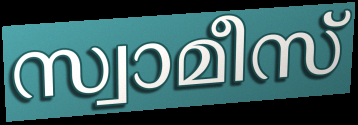
സ്വാമീസ്